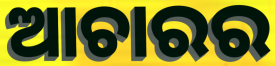
ଆଚାରର